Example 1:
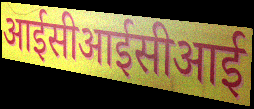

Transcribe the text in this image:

आईसीआईसीआई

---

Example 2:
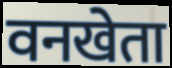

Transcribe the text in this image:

वनखेता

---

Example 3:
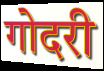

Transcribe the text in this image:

गोदरी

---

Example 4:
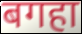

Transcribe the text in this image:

बगहा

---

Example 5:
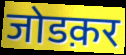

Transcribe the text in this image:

जोडक़र